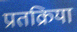
प्रतक्रिया